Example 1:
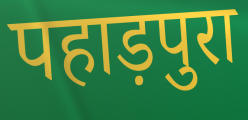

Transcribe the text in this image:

पहाड़पुरा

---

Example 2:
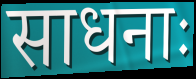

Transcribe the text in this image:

साधनाः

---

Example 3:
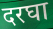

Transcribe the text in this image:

दरघा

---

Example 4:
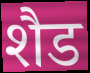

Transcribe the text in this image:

शैड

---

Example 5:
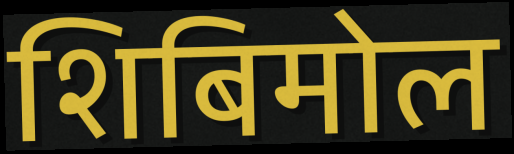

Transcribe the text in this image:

शिबिमोल